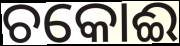
ଚକୋଈ